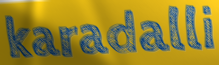
karadalli